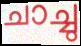
ചാച്ചു